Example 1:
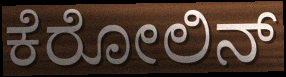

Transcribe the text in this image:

ಕೆರೋಲಿನ್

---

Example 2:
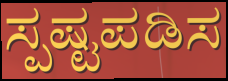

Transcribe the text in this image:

ಸ್ಪಷ್ಟಪಡಿಸ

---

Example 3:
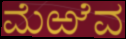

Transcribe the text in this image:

ಮೆಱೆವ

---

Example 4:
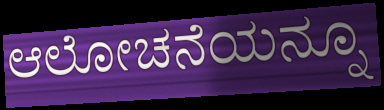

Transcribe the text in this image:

ಆಲೋಚನೆಯನ್ನೂ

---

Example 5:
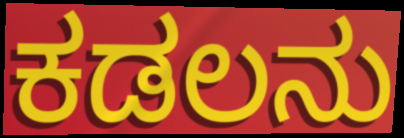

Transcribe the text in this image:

ಕಡಲನು